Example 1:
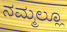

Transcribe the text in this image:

ನಮ್ಮಲ್ಲೂ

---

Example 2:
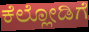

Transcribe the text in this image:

ಕೆಲ್ಲೋಡಿಗೆ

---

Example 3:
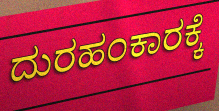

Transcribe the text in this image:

ದುರಹಂಕಾರಕ್ಕೆ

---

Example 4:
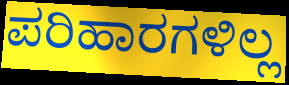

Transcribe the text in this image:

ಪರಿಹಾರಗಳಿಲ್ಲ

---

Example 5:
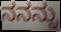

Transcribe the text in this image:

ನನನ್ನು